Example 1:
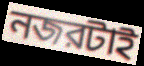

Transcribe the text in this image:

নজরটাই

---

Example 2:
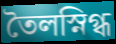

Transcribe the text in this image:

তৈলস্নিগ্ধ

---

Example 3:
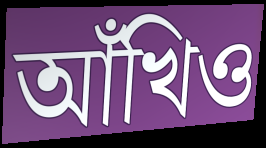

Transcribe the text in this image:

আঁখিও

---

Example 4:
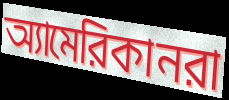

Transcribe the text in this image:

অ্যামেরিকানরা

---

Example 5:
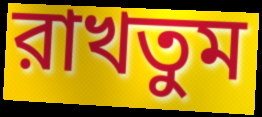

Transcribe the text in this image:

রাখতুম